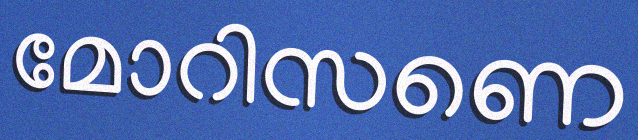
മോറിസണെ